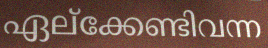
ഏല്ക്കേണ്ടിവന്ന